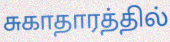
சுகாதாரத்தில்